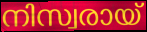
നിസ്വരായ്